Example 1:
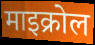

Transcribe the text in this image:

माइक्रोल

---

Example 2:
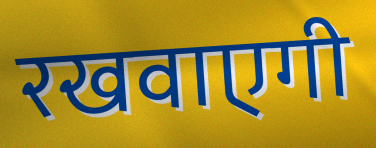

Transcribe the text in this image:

रखवाएगी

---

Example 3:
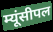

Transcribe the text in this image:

म्यूंसीपल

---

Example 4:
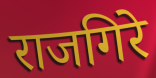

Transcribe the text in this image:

राजगिरे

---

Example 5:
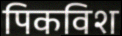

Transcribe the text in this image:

पिकविश